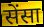
सेंसा